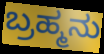
ಬ್ರಹ್ಮನು